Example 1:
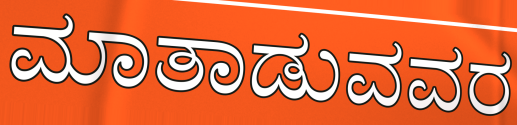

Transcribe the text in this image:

ಮಾತಾಡುವವರ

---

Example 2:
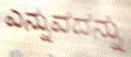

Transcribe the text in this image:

ಎನ್ನುವದನ್ನು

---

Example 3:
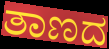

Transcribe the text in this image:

ತಾಣದ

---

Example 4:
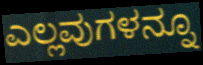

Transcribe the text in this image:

ಎಲ್ಲವುಗಳನ್ನೂ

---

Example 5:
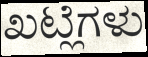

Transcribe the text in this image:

ಖಟ್ಲೆಗಳು